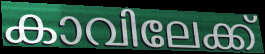
കാവിലേക്ക്